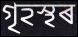
গৃহস্থৰ